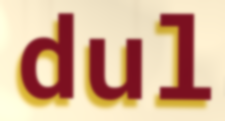
dul